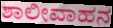
ಶಾಲೀವಾಹನ